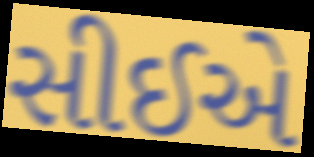
સીઈએ